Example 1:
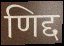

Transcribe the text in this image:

णिद्द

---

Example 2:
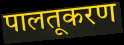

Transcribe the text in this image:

पालतूकरण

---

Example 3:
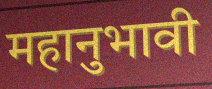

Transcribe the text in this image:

महानुभावी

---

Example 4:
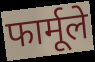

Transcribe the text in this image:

फार्मूले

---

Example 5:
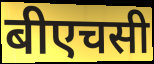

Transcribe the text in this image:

बीएचसी